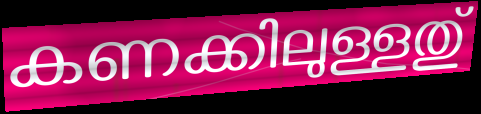
കണക്കിലുള്ളതു്